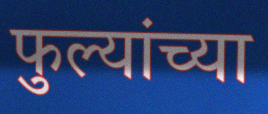
फुल्यांच्या